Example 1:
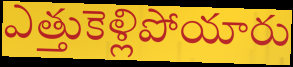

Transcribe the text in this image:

ఎత్తుకెళ్లిపోయారు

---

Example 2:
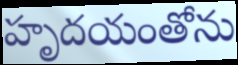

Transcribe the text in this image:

హృదయంతోను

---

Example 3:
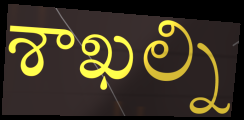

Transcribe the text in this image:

శాఖల్ని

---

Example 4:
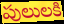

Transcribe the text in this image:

పులులకి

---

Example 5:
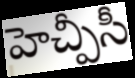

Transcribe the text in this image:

హెచ్పీసీ